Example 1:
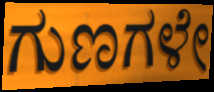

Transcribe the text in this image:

ಗುಣಗಳೇ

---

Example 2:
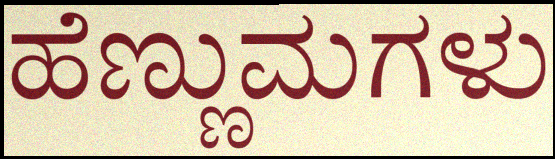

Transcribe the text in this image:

ಹೆಣ್ಣುಮಗಳು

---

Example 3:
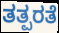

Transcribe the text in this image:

ತತ್ಪರತೆ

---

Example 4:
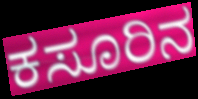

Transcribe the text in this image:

ಕಸೂರಿನ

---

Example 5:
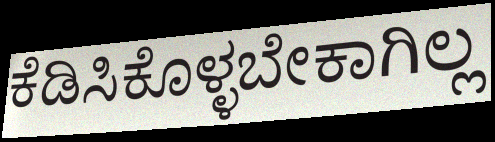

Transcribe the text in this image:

ಕೆಡಿಸಿಕೊಳ್ಳಬೇಕಾಗಿಲ್ಲ